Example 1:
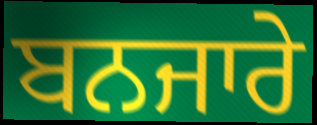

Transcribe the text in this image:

ਬਨਜਾਰੇ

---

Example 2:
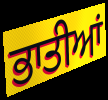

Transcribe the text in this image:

ਭਾਤੀਆਂ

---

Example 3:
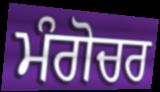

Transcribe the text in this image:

ਮੰਗੋਚਰ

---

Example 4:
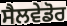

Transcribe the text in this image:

ਸੈਲਵੇਡੋਰ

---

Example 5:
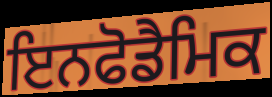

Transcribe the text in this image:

ਇਨਫੋਡੈਮਿਕ